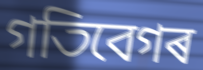
গতিবেগৰ